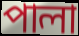
পালা